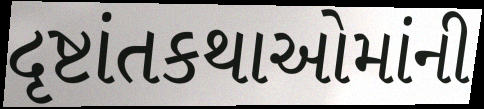
દૃષ્ટાંતકથાઓમાંની